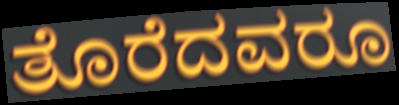
ತೊರೆದವರೂ